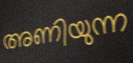
അണിയുന്ന